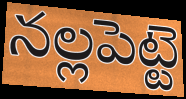
నల్లపెట్టె